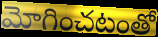
మోగించటంతో